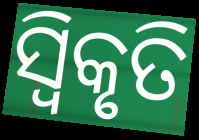
ସ୍ଵିକୃତି